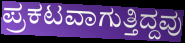
ಪ್ರಕಟವಾಗುತ್ತಿದ್ದವು